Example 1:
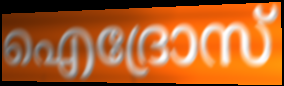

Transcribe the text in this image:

ഐദ്രോസ്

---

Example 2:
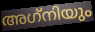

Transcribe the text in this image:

അഗ്‌നിയും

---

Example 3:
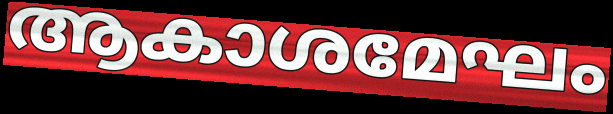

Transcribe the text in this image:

ആകാശമേഘം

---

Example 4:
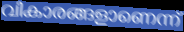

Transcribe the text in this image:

വികാരങ്ങളാണെന്ന്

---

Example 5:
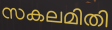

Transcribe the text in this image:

സകലമിതി